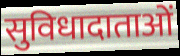
सुविधादाताओं